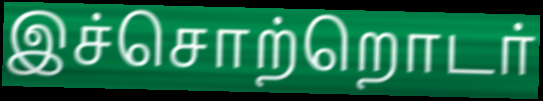
இச்சொற்றொடர்